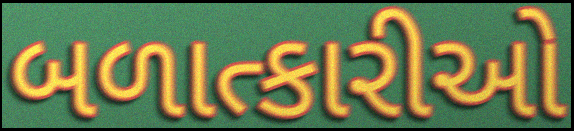
બળાત્કારીઓ